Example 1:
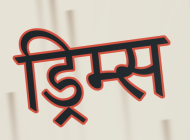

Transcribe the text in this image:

ड्रिम्स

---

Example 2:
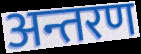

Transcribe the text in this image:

अन्तरण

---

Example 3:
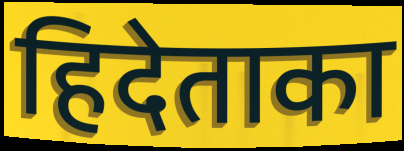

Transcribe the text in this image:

हिदेताका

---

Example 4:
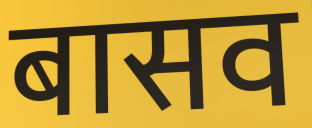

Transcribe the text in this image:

बासव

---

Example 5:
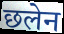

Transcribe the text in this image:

छलेन